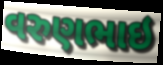
વરુણભાઇ